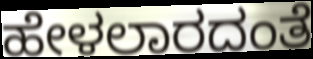
ಹೇಳಲಾರದಂತೆ